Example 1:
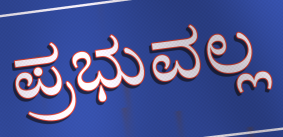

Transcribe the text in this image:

ಪ್ರಭುವಲ್ಲ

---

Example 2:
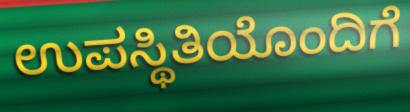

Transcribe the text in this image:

ಉಪಸ್ಥಿತಿಯೊಂದಿಗೆ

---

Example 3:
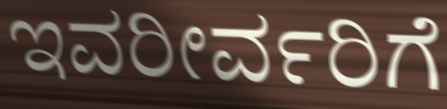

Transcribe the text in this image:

ಇವರೀರ್ವರಿಗೆ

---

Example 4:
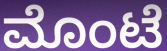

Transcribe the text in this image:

ಮೊಂಟೆ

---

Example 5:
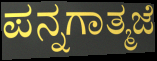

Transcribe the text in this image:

ಪನ್ನಗಾತ್ಮಜೆ